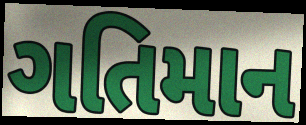
ગતિમાન